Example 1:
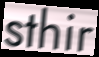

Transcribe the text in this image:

sthir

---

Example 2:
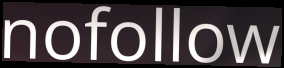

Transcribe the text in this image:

nofollow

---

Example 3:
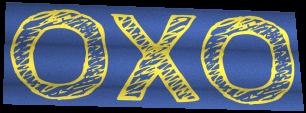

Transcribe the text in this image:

OXO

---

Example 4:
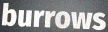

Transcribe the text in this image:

burrows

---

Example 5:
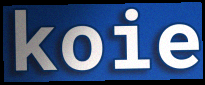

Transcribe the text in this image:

koie